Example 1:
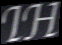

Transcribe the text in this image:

IH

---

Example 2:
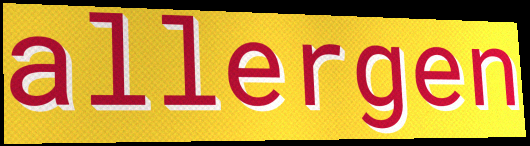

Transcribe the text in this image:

allergen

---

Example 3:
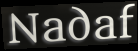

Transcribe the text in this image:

Nadaf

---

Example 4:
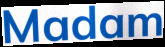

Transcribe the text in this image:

Madam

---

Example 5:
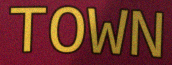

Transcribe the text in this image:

TOWN